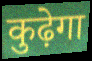
कुढ़ेगा